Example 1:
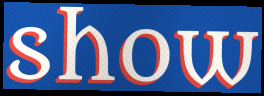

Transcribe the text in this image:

show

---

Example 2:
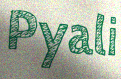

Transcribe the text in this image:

Pyali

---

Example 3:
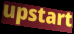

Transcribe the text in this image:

upstart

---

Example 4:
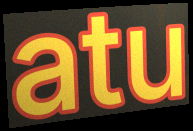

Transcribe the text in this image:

atu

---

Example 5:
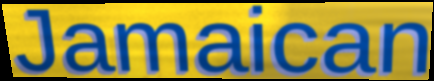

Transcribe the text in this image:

Jamaican